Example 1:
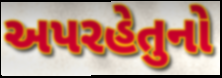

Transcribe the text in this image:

અપરહેતુનો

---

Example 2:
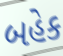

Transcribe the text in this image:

બહેક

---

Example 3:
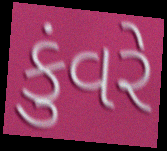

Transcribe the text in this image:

કુંવરે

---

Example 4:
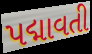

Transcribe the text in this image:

પદ્માવતી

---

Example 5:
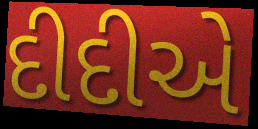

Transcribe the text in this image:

દીદીએ